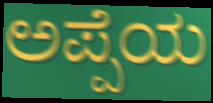
ಅಪ್ಪೆಯ